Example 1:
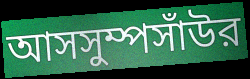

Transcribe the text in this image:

আসসুম্পসাঁউর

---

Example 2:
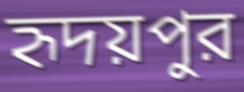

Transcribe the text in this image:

হৃদয়পুর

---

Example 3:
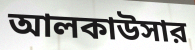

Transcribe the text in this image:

আলকাউসার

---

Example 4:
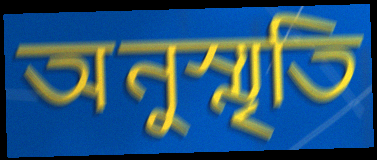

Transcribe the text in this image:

অনুস্মৃতি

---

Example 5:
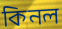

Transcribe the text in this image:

কিনল